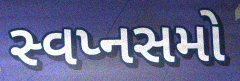
સ્વપ્નસમો